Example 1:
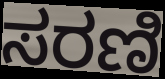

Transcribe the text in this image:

ಸರಣಿ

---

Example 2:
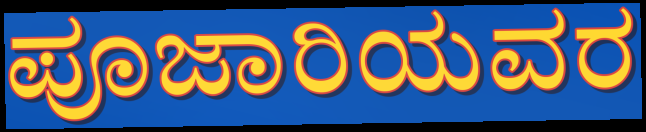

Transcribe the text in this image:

ಪೂಜಾರಿಯವರ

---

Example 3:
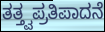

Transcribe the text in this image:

ತತ್ತ್ವಪ್ರತಿಪಾದನೆ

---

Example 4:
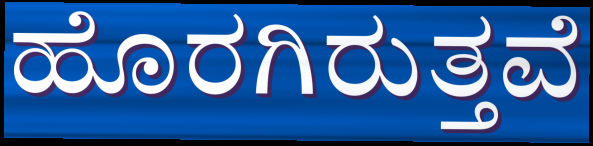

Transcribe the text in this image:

ಹೊರಗಿರುತ್ತವೆ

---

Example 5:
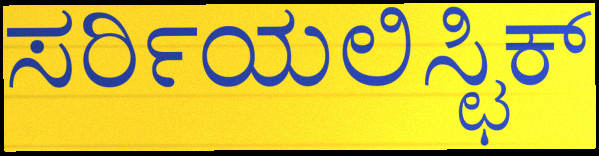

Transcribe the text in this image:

ಸರ್ರಿಯಲಿಸ್ಟಿಕ್